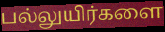
பல்லுயிர்களை